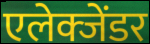
एलेक्‍जेंडर